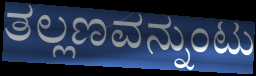
ತಲ್ಲಣವನ್ನುಂಟು